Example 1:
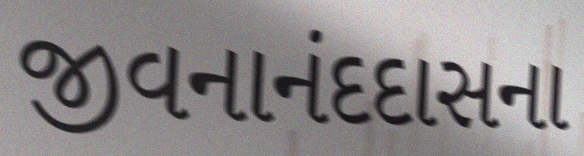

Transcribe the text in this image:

જીવનાનંદદાસના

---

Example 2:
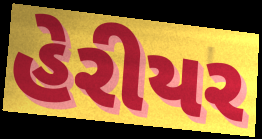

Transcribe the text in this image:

હેરીયર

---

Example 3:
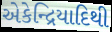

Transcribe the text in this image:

એકેન્દ્રિયાદિથી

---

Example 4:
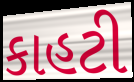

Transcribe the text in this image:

કાહટી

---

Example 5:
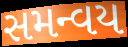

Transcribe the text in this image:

સમન્વય